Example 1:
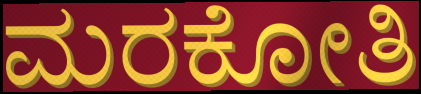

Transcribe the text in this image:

ಮರಕೋತಿ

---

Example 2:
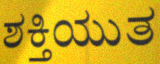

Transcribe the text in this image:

ಶಕ್ತಿಯುತ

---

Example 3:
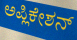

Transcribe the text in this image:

ಅಪ್ಲಿಕೇಶನ್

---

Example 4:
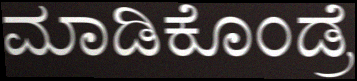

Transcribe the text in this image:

ಮಾಡಿಕೊಂಡ್ರೆ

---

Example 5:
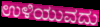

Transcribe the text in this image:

ಉಳಿಯುವದು